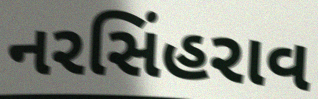
નરસિંહરાવ